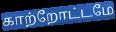
காற்றோட்டமே